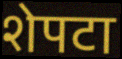
शेपटा